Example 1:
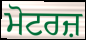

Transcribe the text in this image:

ਮੋਟਰਜ਼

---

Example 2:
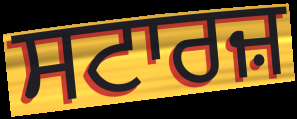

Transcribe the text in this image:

ਸਟਾਰਜ਼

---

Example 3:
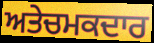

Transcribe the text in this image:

ਅਤੇਚਮਕਦਾਰ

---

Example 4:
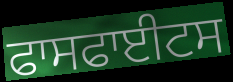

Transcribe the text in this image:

ਫਾਸਫਾਈਟਸ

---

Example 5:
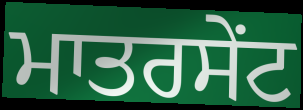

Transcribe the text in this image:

ਮਾਤਰਸੇਂਟ